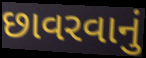
છાવરવાનું